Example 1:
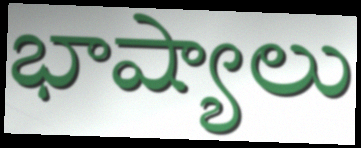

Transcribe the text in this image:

భాష్యాలు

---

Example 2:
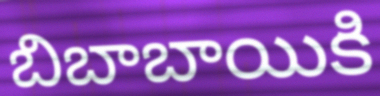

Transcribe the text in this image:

బిబాబాయికి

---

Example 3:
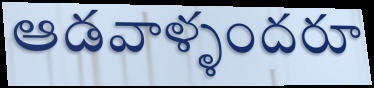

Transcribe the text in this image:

ఆడవాళ్ళందరూ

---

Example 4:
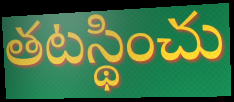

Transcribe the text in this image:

తటస్థించు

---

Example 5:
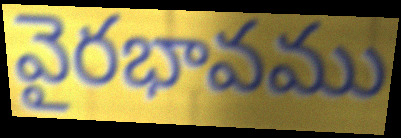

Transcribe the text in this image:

వైరభావము